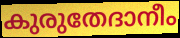
കുരുതേദാനീം